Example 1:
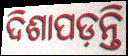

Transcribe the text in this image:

ଦିଶାପଡ଼ନ୍ତି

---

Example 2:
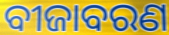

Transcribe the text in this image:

ବୀଜାବରଣ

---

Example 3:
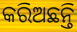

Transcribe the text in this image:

କରିଅଛନ୍ତି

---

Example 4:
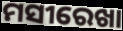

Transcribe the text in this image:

ମସୀରେଖା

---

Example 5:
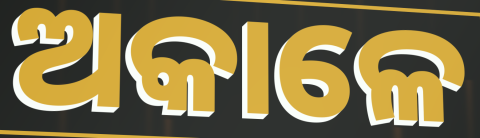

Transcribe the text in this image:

ଅକାଳେ